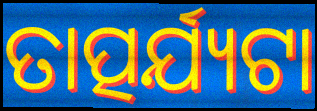
ତାତ୍ପର୍ଯ୍ୟଟା